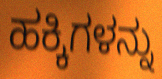
ಹಕ್ಕಿಗಳನ್ನು